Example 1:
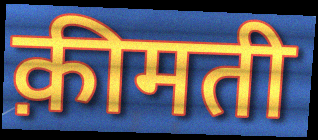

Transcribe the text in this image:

क़ीमती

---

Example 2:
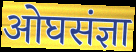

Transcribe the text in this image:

ओघसंज्ञा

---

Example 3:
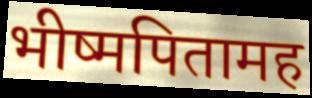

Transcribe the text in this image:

भीष्मपितामह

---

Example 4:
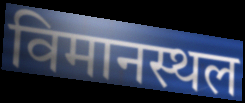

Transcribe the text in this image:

विमानस्थल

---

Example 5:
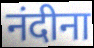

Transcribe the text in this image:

नंदीना